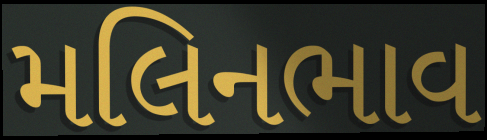
મલિનભાવ